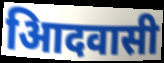
आिदवासी